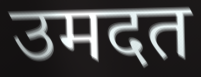
उमदत